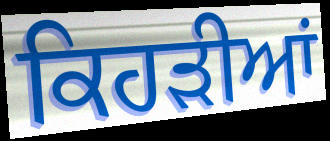
ਕਿਹੜੀਆਂ